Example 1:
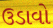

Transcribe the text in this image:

ઉડાવો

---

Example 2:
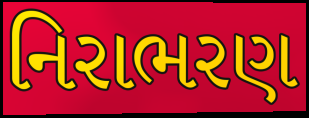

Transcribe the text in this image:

નિરાભરણ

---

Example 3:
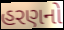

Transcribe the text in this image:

હરણનો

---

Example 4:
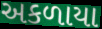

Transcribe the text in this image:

અકળાયા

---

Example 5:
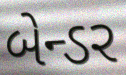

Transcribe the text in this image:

બેન્ડર